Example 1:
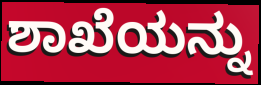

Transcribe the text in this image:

ಶಾಖೆಯನ್ನು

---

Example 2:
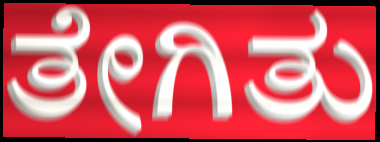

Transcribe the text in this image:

ತೇಗಿತು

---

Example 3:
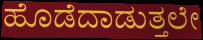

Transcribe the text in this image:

ಹೊಡೆದಾಡುತ್ತಲೇ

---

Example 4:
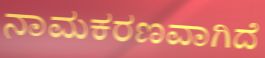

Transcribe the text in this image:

ನಾಮಕರಣವಾಗಿದೆ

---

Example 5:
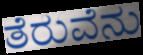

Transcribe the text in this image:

ತೆರುವೆನು